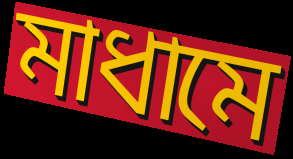
মাধামে